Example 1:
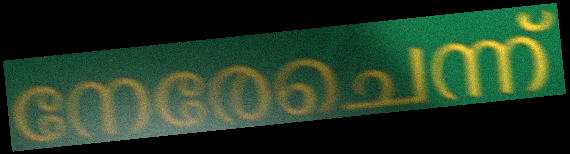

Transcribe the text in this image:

നേരേചെന്ന്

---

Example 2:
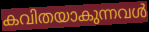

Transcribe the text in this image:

കവിതയാകുന്നവൾ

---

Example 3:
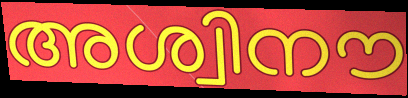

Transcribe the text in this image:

അശ്വിനൗ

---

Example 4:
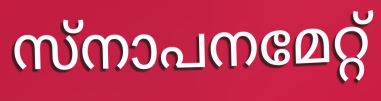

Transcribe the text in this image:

സ്നാപനമേറ്റ്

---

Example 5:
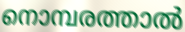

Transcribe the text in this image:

നൊമ്പരത്താൽ